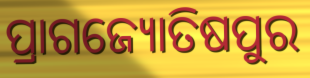
ପ୍ରାଗଜ୍ୟୋତିଷପୁର